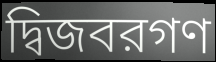
দ্বিজবরগণ